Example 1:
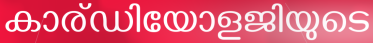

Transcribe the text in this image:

കാര്ഡിയോളജിയുടെ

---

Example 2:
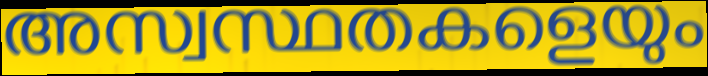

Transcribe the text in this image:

അസ്വസ്ഥതകളെയും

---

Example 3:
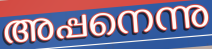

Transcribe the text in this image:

അപ്പനെന്നു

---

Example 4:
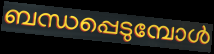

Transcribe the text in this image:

ബന്ധപ്പെടുമ്പോൾ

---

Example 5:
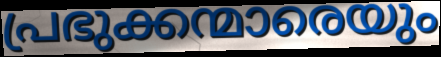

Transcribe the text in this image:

പ്രഭുക്കന്മാരെയും